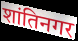
शांतिनगर